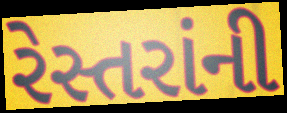
રેસ્તરાંની